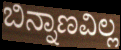
ಬಿನ್ನಾಣವಿಲ್ಲ